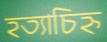
হত্যাচিহ্ন